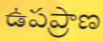
ఉపప్రాణ